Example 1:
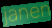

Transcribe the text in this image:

janen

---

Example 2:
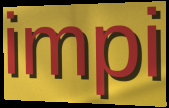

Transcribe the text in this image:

impi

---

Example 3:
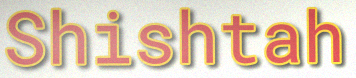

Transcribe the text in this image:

Shishtah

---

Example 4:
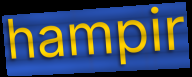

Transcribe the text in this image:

hampir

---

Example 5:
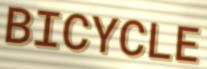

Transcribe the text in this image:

BICYCLE